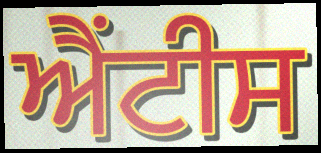
ਐਂਟੀਸ